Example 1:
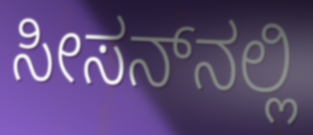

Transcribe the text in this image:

ಸೀಸನ್‌ನಲ್ಲಿ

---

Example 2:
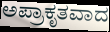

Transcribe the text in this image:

ಅಪ್ರಾಕೃತವಾದ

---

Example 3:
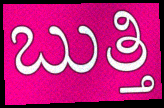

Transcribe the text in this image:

ಬುತ್ತಿ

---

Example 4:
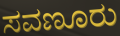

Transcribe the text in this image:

ಸವಣೂರು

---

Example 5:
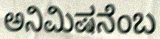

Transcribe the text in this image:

ಅನಿಮಿಷನೆಂಬ